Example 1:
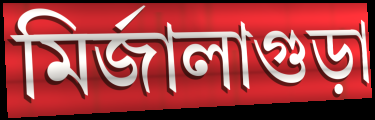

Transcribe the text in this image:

মিৰ্জালাগুড়া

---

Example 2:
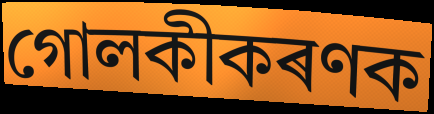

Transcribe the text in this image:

গোলকীকৰণক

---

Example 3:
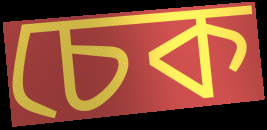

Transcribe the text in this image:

চেক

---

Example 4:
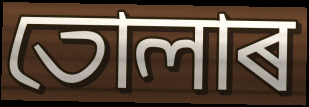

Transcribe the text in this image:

তোলাৰ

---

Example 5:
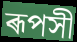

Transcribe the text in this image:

ৰূপসী